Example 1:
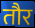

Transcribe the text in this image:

तौर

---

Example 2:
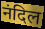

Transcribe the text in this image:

नंदिल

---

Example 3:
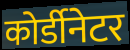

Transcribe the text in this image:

कोर्डीनेटर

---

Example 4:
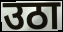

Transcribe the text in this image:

उठा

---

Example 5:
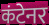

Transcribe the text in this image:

कंटेनर